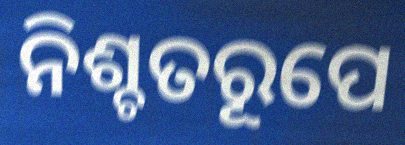
ନିଶ୍ଚତରୂପେ